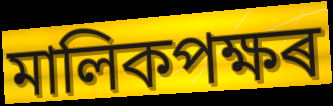
মালিকপক্ষৰ